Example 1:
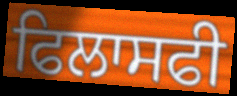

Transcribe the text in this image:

ਫਿਲਾਸਫੀ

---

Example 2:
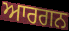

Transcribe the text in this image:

ਆਰਗਨ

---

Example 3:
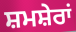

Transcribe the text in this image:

ਸ਼ਮਸ਼ੇਰਾਂ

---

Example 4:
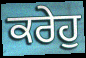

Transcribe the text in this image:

ਕਰੇਹੁ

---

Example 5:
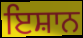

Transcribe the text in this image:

ਇਸ਼ਾਨ